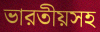
ভারতীয়সহ